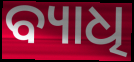
ବ୍ୟାଧି